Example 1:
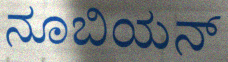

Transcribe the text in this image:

ನೂಬಿಯನ್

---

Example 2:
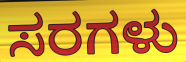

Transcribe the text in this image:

ಸರಗಳು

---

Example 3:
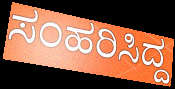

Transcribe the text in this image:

ಸಂಹರಿಸಿದ್ದ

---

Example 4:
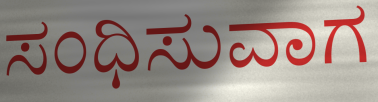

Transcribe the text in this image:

ಸಂಧಿಸುವಾಗ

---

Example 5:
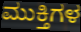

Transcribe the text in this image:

ಮುಕ್ತಿಗಳ